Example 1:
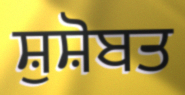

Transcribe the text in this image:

ਸ਼ੁਸ਼ੋਬਤ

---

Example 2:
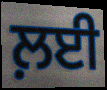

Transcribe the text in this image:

ਲ਼ਈ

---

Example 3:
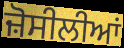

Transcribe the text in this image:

ਜ਼ੋਸੀਲੀਆਂ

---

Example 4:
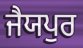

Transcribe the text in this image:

ਜੈਯਪੁਰ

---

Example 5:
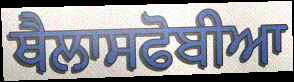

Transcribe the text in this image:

ਥੈਲਾਸਫੋਬੀਆ